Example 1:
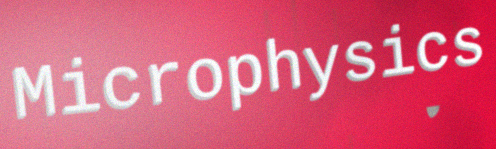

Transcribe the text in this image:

Microphysics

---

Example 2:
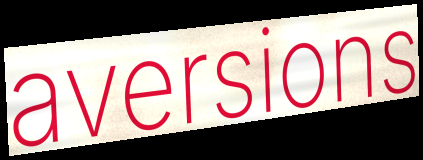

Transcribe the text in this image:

aversions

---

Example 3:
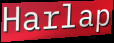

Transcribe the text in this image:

Harlap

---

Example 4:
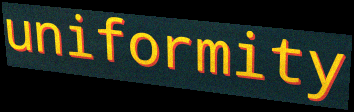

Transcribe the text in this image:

uniformity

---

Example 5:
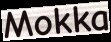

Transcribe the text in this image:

Mokka